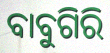
ବାବୁଗିରି